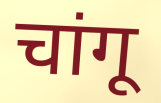
चांगू